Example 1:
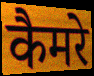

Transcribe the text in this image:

कैमरे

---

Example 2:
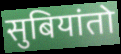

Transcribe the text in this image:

सुबियांतो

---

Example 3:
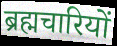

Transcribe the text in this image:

ब्रह्मचारियों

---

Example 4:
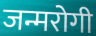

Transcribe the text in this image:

जन्मरोगी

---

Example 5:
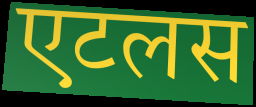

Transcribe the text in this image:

एटलस